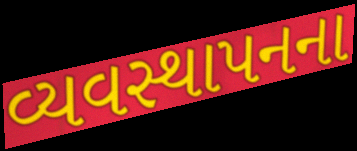
વ્યવસ્થાપનના